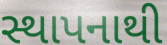
સ્થાપનાથી